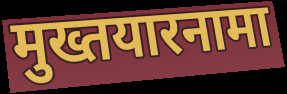
मुख्तयारनामा